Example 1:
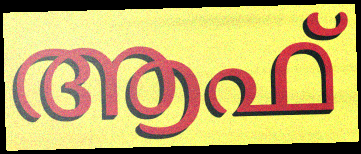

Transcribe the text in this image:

ആഫ്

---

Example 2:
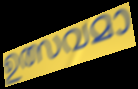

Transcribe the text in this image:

ഉത്സവമാ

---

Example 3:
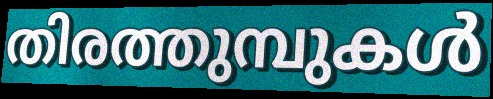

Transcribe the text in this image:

തിരത്തുമ്പുകൾ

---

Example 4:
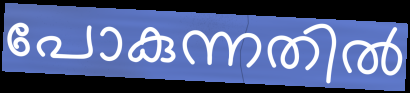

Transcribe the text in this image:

പോകുന്നതിൽ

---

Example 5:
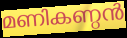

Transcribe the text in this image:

മണികണ്ഠൻ